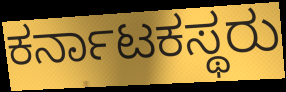
ಕರ್ನಾಟಕಸ್ಥರು